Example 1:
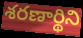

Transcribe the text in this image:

శరణార్థిని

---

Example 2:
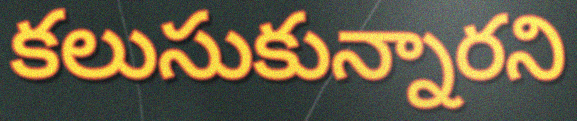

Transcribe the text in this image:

కలుసుకున్నారని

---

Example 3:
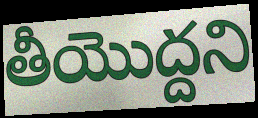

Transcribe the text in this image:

తీయొద్దని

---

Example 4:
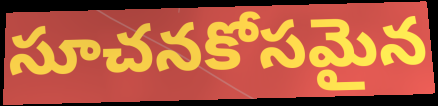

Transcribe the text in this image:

సూచనకోసమైన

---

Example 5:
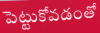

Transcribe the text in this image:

పెట్టుకోవడంతో